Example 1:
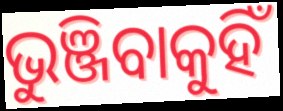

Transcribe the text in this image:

ଭୁଞ୍ଜିବାକୁହିଁ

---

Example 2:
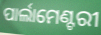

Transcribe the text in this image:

ପାର୍ଲାମେଣ୍ଟରୀ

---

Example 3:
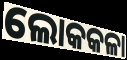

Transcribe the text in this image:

ଲୋକକଳା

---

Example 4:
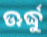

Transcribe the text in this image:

ଊର୍ଦ୍ଧୁ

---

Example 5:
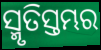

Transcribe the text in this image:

ସ୍ମୃତିସ୍ତମ୍ଭର